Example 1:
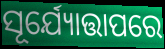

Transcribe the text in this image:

ସୂର୍ଯ୍ୟୋତ୍ତାପରେ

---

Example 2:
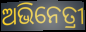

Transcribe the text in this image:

ଅଭିନେତ୍ରୀ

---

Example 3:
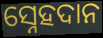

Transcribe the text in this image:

ସ୍ନେହଦାନ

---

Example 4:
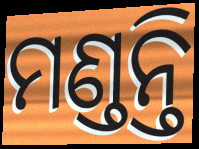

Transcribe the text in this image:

ମଣ୍ଡନ୍ତି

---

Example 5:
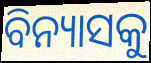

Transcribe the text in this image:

ବିନ୍ୟାସକୁ